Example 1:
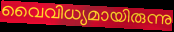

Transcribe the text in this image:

വൈവിധ്യമായിരുന്നു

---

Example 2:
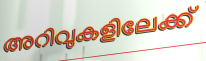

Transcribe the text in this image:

അറിവുകളിലേക്ക്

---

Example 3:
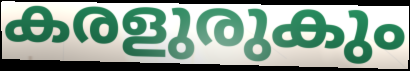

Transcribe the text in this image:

കരളുരുകും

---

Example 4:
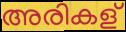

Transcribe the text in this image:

അരികള്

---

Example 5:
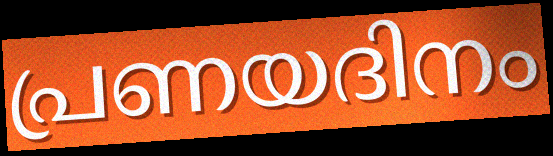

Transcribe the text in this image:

പ്രണയദിനം